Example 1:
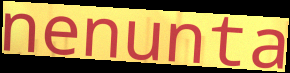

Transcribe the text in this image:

nenunta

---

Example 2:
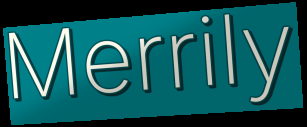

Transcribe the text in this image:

Merrily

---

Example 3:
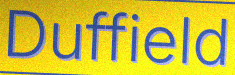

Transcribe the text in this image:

Duffield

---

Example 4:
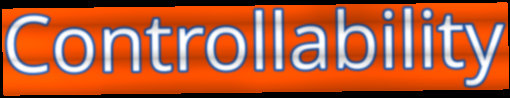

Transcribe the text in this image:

Controllability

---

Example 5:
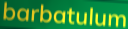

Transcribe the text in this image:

barbatulum